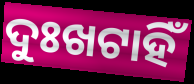
ଦୁଃଖଟାହିଁ